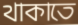
থাকাতে